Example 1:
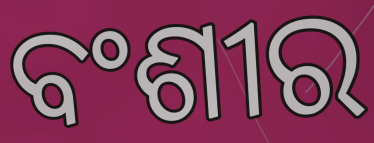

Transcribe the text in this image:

ବଂଶୀର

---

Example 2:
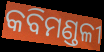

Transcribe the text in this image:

କବିମଣ୍ଡଳୀ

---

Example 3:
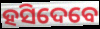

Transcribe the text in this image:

ହସିଦେବେ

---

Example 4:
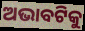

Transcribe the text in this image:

ଅଭାବଟିକୁ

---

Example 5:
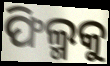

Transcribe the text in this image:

ଫିଲ୍ମକୁ